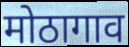
मोठागाव